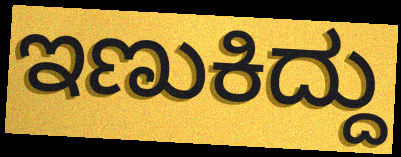
ಇಣುಕಿದ್ದು